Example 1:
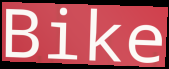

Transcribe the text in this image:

Bike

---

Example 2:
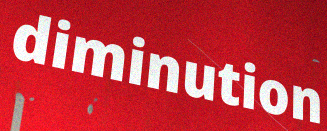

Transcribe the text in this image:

diminution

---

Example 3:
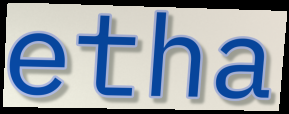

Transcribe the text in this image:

etha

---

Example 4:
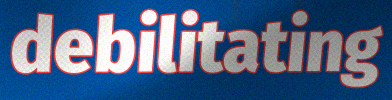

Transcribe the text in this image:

debilitating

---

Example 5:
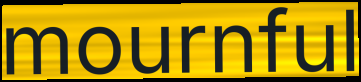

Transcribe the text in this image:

mournful